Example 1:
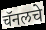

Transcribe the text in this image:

चॅनलचे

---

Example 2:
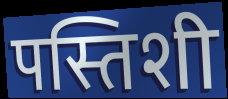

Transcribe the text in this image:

पस्तिशी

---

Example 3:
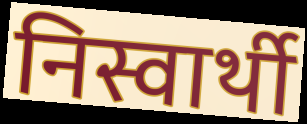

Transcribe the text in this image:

निस्वार्थी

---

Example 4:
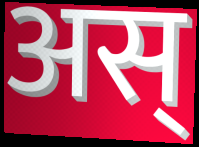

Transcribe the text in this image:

अस्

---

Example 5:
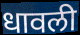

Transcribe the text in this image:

धावली